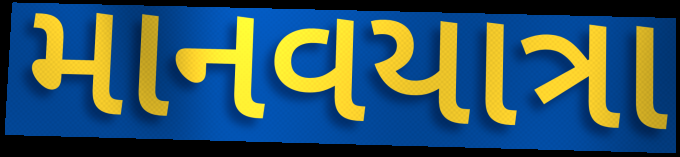
માનવયાત્રા